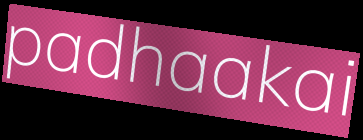
padhaakai